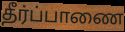
தீர்ப்பாணை